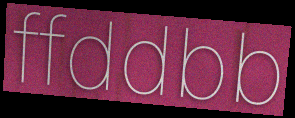
ffddbb